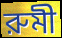
ৰুমী